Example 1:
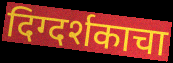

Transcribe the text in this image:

दिग्दर्शकाचा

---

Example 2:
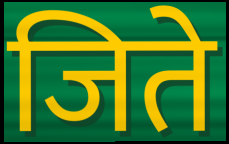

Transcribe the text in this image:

जिते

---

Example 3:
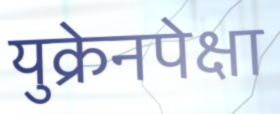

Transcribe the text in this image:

युक्रेनपेक्षा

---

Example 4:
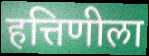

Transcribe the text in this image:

हत्तिणीला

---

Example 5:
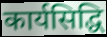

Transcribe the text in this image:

कार्यसिद्धि